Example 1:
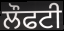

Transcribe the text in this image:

ਲੌਫਟੀ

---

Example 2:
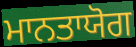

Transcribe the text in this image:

ਮਾਨਤਾਯੋਗ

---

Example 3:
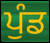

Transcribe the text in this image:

ਪੁੰਡ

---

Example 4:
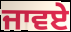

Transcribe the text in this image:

ਜਾਵਏ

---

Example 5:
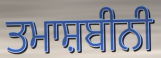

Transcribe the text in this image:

ਤਮਾਸ਼ਬੀਨੀ